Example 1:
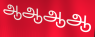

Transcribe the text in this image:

ஆஆஆஆ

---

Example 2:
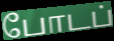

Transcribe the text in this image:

போடப்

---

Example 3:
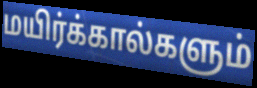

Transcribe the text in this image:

மயிர்க்கால்களும்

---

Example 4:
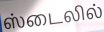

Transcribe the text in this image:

ஸ்டைலில்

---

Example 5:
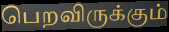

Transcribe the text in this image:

பெறவிருக்கும்